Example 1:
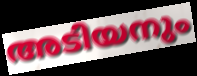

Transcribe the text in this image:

അടിയനും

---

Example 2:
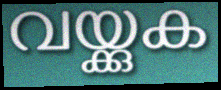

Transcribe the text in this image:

വയ്ക്കുക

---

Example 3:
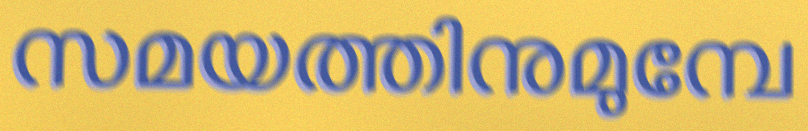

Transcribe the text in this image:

സമയത്തിനുമുമ്പേ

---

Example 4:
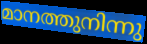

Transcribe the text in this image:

മാനത്തുനിന്നു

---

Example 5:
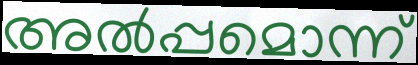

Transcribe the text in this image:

അൽപ്പമൊന്ന്